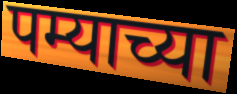
पम्याच्या